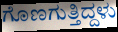
ಗೊಣಗುತ್ತಿದ್ದಳು